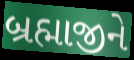
બ્રહ્માજીને